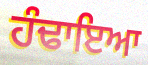
ਹੰਢਾਇਆ